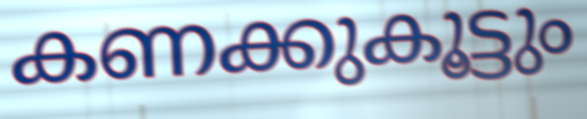
കണക്കുകൂട്ടും